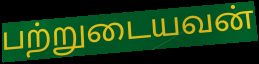
பற்றுடையவன்